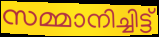
സമ്മാനിച്ചിട്ട്